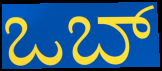
ಒಬ್